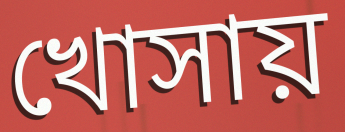
খোসায়